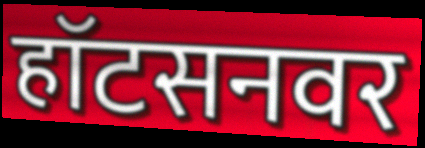
हॉटसनवर